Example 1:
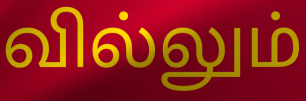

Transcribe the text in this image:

வில்லும்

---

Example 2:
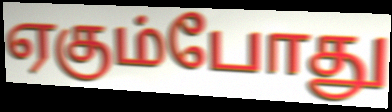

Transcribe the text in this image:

ஏகும்போது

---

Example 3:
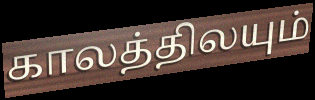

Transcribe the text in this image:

காலத்திலயும்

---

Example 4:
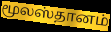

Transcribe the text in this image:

மூலஸ்தானம்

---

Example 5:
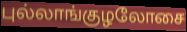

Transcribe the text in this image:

புல்லாங்குழலோசை